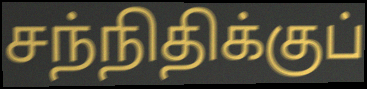
சந்நிதிக்குப்